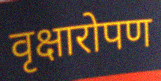
वृक्षारोपण